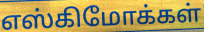
எஸ்கிமோக்கள்